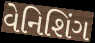
વેનિશિંગ